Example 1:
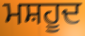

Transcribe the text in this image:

ਮਸ਼ਹੂਦ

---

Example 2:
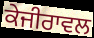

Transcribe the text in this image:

ਕੇਜੀਰਾਵਲ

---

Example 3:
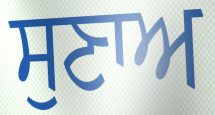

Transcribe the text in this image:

ਸੁਣਾਅ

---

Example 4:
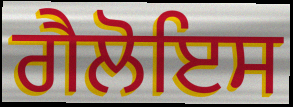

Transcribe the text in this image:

ਗੈਲੋਇਸ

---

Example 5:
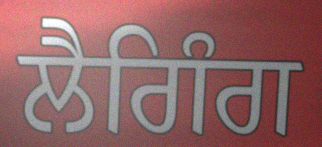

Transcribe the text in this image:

ਲੈਗਿੰਗ